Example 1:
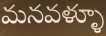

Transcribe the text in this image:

మనవళ్ళూ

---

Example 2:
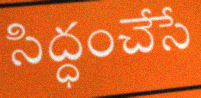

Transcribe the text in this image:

సిద్ధంచేసే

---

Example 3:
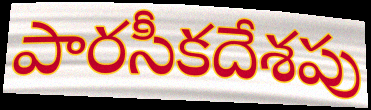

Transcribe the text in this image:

పారసీకదేశపు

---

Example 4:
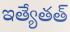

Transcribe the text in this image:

ఇత్యేతత్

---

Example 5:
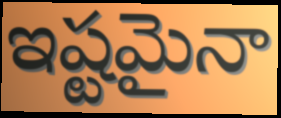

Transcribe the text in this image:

ఇష్టమైనా